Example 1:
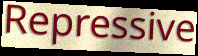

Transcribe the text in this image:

Repressive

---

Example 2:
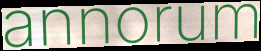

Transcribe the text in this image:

annorum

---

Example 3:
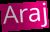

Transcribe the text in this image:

Araj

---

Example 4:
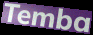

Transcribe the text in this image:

Temba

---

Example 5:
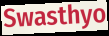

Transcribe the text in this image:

Swasthyo